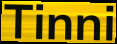
Tinni